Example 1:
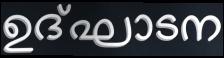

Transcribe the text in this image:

ഉദ്ഘാടന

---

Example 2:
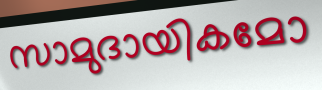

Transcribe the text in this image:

സാമുദായികമോ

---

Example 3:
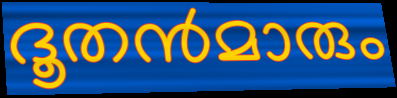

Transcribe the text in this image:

ദൂതൻമാരും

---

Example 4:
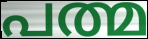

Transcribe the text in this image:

പത്മ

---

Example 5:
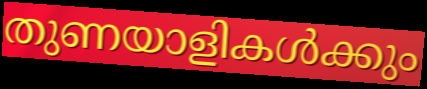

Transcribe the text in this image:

തുണയാളികൾക്കും